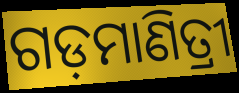
ଗଡ଼ମାଣିତ୍ରୀ